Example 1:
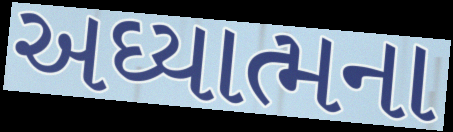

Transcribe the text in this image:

અઘ્યાત્મના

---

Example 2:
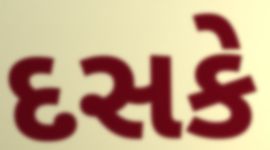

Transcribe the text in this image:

દસકે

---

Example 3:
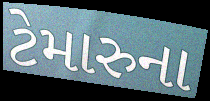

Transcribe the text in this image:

ટેમારુના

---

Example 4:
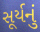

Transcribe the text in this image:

સૂર્યનું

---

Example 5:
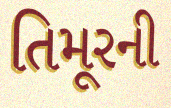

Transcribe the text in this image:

તિમૂરની